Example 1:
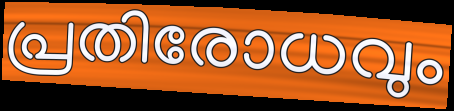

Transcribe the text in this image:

പ്രതിരോധവും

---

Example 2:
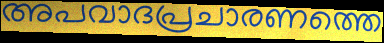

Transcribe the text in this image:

അപവാദപ്രചാരണത്തെ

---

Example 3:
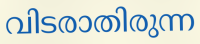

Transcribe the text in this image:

വിടരാതിരുന്ന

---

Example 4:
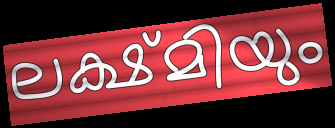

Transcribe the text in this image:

ലക്ഷ്മിയും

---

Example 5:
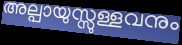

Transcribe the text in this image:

അല്പായുസ്സുള്ളവനും